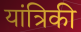
यांत्रिकी